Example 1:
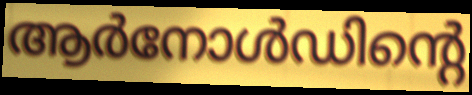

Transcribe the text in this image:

ആർനോൾഡിന്റെ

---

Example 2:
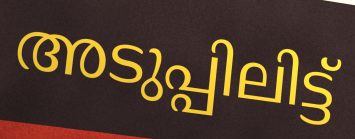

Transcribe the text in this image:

അടുപ്പിലിട്ട്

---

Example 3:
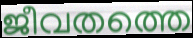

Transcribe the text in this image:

ജീവതത്തെ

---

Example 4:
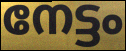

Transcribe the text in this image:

നേട്ടം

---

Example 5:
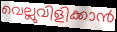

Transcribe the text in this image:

വെല്ലുവിളിക്കാൻ